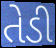
તેડી